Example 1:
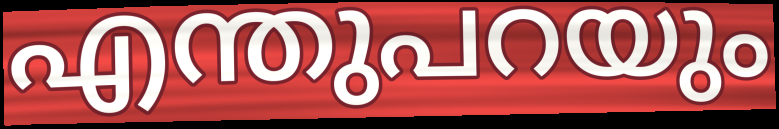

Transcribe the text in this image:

എന്തുപറയും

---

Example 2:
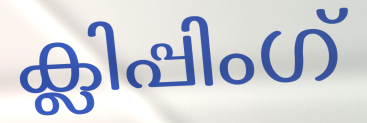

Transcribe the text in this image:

ക്ലിപ്പിംഗ്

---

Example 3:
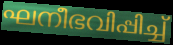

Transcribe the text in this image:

ഘനീഭവിപ്പിച്ച്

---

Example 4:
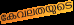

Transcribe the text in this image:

കേവലതയുടെ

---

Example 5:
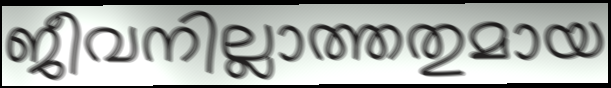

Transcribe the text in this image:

ജീവനില്ലാത്തതുമായ